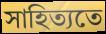
সাহিত্য়তে